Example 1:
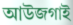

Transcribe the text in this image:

আউজগাই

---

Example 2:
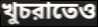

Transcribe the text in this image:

খুচরাতেও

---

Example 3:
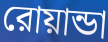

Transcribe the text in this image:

রোয়ান্ডা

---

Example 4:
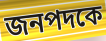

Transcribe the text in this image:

জনপদকে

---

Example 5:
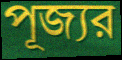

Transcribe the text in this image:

পূজ্যর